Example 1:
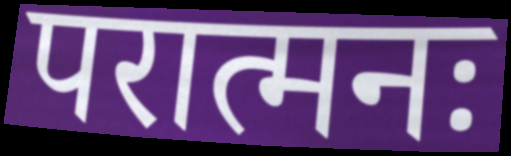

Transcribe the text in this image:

परात्मनः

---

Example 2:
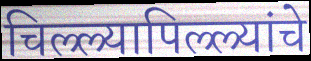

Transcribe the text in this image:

चिल्ल्यापिल्ल्यांचे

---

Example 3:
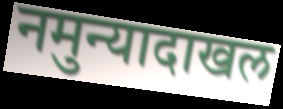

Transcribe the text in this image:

नमुन्यादाखल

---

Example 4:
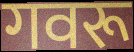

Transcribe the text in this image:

गवरू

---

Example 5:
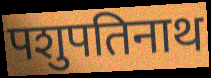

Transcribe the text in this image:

पशुपतिनाथ